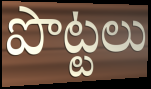
పొట్టలు